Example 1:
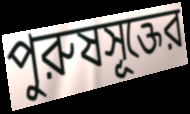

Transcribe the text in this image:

পুরুষসূক্তের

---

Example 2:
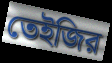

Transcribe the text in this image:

তেইজির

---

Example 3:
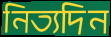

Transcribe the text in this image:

নিত্যদিন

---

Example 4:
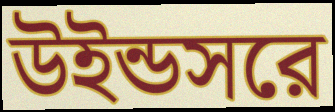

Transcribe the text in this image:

উইন্ডসরে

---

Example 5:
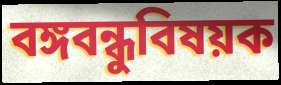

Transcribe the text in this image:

বঙ্গবন্ধুবিষয়ক